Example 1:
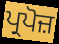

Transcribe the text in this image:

ਪ੍ਰਪੋਜ਼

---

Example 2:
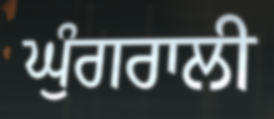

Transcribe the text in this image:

ਘੁੰਗਰਾਲੀ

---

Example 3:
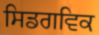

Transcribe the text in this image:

ਸਿਡਗਵਿਕ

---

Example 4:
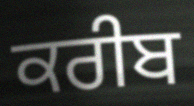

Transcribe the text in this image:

ਕਰੀਬ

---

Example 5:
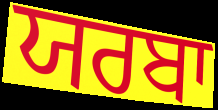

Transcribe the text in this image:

ਯਰਬਾ